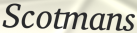
Scotmans